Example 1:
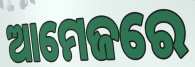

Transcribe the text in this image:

ଆମେଜରେ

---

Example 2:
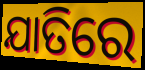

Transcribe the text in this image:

ଯାତିରେ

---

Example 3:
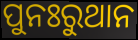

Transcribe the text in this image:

ପୁନଃରୁଥାନ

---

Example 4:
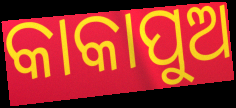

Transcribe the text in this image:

କାକାପୁଅ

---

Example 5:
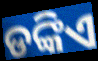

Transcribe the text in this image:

ଡଙ୍କିଏ